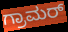
ಗ್ರಾಮರ್